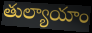
తుల్యాయాం